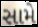
સામે